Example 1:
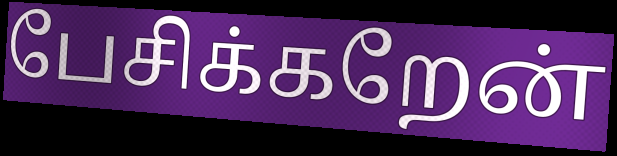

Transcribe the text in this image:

பேசிக்கறேன்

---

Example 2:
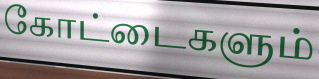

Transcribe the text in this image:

கோட்டைகளும்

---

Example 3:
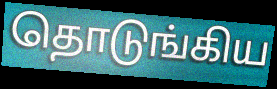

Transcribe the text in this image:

தொடுங்கிய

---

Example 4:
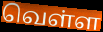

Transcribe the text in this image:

வெள்ள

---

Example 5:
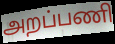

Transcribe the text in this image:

அறப்பணி